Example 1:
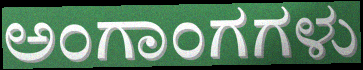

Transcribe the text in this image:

ಅಂಗಾಂಗಗಳು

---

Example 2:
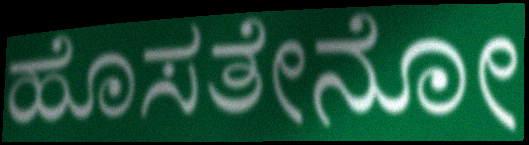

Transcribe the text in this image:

ಹೊಸತೇನೋ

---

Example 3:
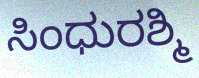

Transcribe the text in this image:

ಸಿಂಧುರಶ್ಮಿ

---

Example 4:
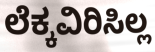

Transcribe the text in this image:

ಲೆಕ್ಕವಿರಿಸಿಲ್ಲ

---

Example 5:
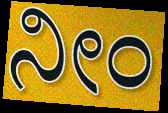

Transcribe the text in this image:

ನೀಂ